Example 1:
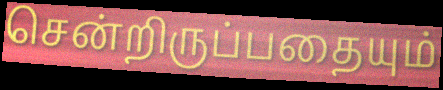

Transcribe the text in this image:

சென்றிருப்பதையும்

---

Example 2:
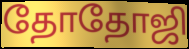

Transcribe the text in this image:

தோதோஜி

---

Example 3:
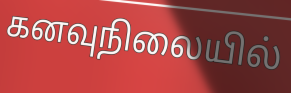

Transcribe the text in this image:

கனவுநிலையில்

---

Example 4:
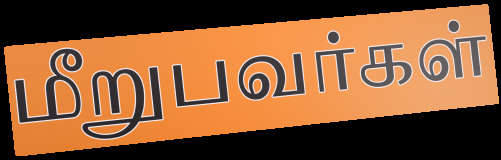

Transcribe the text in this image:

மீறுபவர்கள்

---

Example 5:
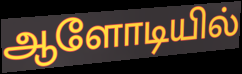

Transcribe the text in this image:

ஆளோடியில்